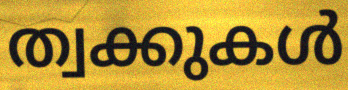
ത്വക്കുകൾ